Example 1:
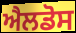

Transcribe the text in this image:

ਐਲਡੋਸ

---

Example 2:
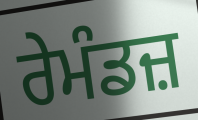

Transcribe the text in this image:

ਰੇਮੰਡਜ਼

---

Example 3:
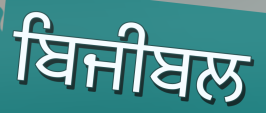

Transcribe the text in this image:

ਬਿਜੀਬਲ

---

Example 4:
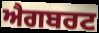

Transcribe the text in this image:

ਐਗਬਰਟ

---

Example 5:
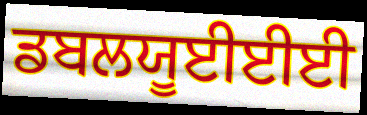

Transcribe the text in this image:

ਡਬਲਯੂਈਈਈ